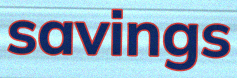
savings